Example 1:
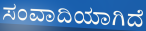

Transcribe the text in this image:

ಸಂವಾದಿಯಾಗಿದೆ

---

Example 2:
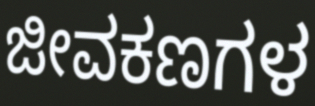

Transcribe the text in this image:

ಜೀವಕಣಗಳ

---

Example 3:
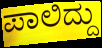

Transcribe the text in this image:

ಪಾಲಿದ್ದು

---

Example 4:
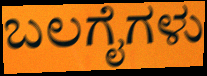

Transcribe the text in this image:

ಬಲಗೈಗಳು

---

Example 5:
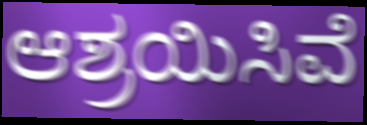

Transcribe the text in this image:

ಆಶ್ರಯಿಸಿವೆ